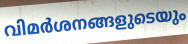
വിമർശനങ്ങളുടെയും